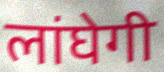
लांघेगी